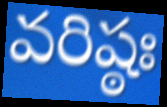
వరిష్ఠః